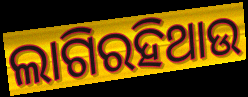
ଲାଗିରହିଥାଉ